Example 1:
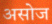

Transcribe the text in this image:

असोज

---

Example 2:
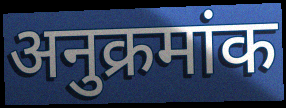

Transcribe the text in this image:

अनुक्रमांक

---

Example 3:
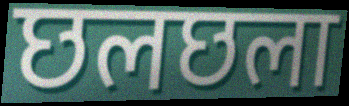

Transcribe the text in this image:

छलछला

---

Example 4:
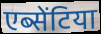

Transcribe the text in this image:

एब्सेंटिया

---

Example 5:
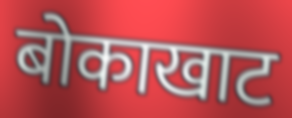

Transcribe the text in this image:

बोकाखाट